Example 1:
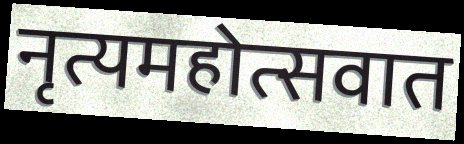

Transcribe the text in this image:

नृत्यमहोत्सवात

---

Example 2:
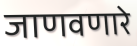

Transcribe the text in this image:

जाणवणारे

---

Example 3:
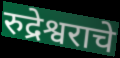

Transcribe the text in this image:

रुद्रेश्वराचे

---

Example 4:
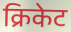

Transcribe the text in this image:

क्रिकेट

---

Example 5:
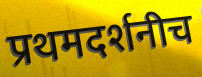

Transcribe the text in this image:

प्रथमदर्शनीच